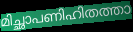
മിച്ഛാപണിഹിതത്താ